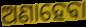
ଅଣାହେବା